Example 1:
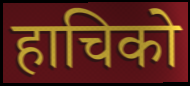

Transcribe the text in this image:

हाचिको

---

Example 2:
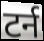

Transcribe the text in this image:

टर्न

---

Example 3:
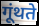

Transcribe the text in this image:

गूंथते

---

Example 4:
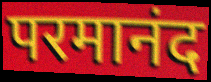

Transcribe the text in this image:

परमानंद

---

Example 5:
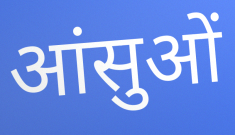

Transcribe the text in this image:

आंसुओं